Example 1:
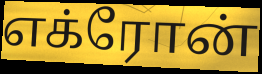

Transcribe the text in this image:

எக்ரோன்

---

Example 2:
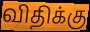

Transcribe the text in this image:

விதிக்கு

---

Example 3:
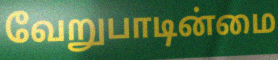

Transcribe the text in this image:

வேறுபாடின்மை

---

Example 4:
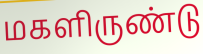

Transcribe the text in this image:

மகளிருண்டு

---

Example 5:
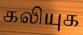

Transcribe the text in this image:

கலியுக